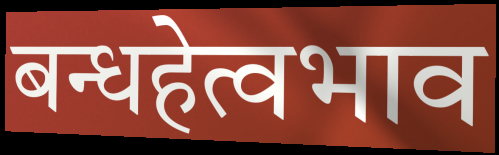
बन्धहेत्वभाव